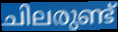
ചിലരുണ്ട്